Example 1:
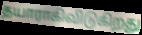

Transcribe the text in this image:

தயாராகிவிடுகிறது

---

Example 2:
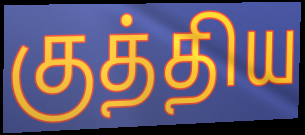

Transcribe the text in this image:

குத்திய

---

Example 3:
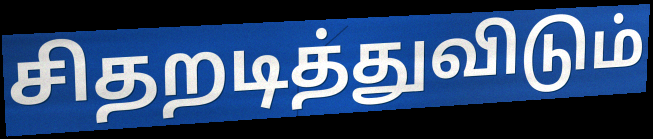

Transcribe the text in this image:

சிதறடித்துவிடும்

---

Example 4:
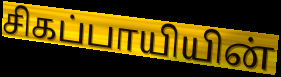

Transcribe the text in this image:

சிகப்பாயியின்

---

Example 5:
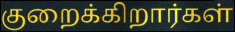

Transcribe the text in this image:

குறைக்கிறார்கள்